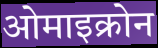
ओमाइक्रोन